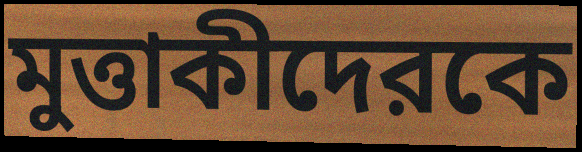
মুত্তাকীদেরকে